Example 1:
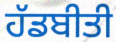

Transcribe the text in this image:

ਹੱਡਬੀਤੀ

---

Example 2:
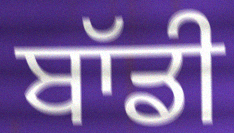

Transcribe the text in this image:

ਬਾੱਡੀ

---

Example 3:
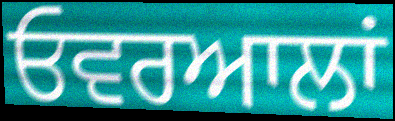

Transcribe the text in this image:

ਓਵਰਆਲਾਂ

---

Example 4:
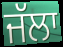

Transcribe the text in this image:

ਜੱਲਾ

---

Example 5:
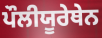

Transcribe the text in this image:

ਪੌਲੀਯੂਰੇਥੇਨ